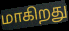
மாகிறது